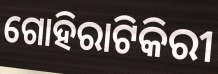
ଗୋହିରାଟିକିରୀ